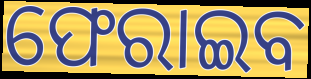
ଫେରାଇବ